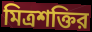
মিত্রশক্তির